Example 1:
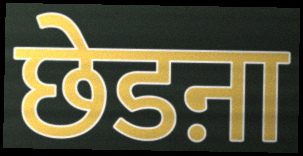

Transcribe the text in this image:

छेडऩा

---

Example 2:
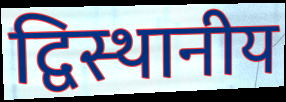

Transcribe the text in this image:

द्विस्थानीय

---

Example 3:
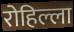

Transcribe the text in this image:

रोहिल्ला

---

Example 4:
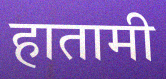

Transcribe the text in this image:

हातामी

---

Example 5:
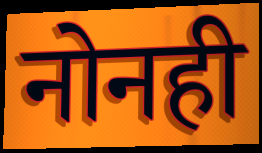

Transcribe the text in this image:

नोनही